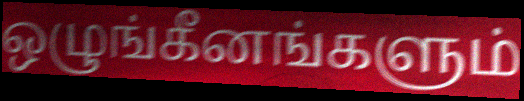
ஒழுங்கீனங்களும்